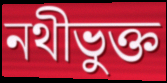
নথীভুক্ত